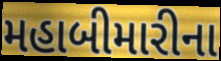
મહાબીમારીના